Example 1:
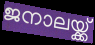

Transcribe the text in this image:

ജനാലയ്ക്ക്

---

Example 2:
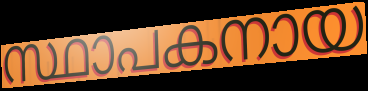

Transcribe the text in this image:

സ്ഥാപകനായ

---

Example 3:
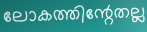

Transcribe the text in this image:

ലോകത്തിന്റേതല്ല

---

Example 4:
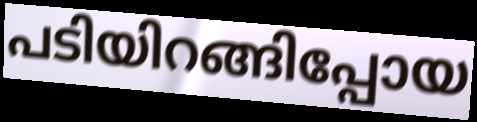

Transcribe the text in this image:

പടിയിറങ്ങിപ്പോയ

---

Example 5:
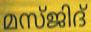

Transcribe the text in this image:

മസ്ജിദ്